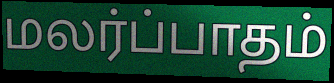
மலர்ப்பாதம்